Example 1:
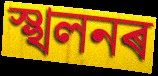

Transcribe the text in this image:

স্খলনৰ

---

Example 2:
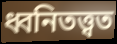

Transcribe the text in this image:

ধ্বনিতত্ত্বত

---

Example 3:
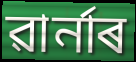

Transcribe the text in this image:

ৱাৰ্নাৰ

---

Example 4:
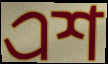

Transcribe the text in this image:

এশ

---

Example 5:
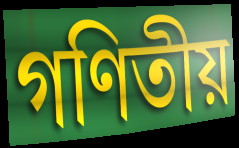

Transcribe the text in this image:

গণিতীয়